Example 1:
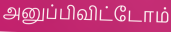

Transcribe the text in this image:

அனுப்பிவிட்டோம்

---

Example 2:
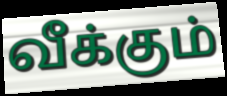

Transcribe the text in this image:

வீக்கும்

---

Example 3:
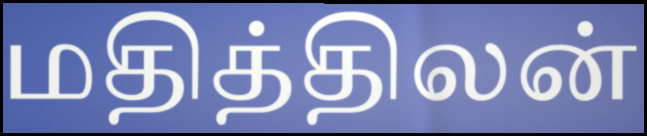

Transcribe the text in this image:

மதித்திலன்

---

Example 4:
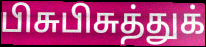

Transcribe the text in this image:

பிசுபிசுத்துக்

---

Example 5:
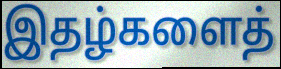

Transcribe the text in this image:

இதழ்களைத்